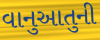
વાનુઆતુની